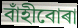
বাঁহীবোৰা